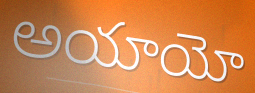
అయాయో